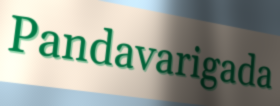
Pandavarigada